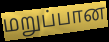
மறுப்பான